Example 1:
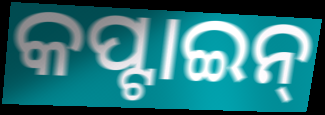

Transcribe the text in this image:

କପ୍ଟାଇନ୍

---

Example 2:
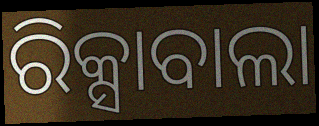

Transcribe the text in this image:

ରିକ୍ସାବାଲା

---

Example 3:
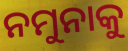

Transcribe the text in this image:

ନମୁନାକୁ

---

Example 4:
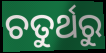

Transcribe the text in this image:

ଚତୁର୍ଥରୁ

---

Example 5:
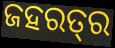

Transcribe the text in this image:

ଜହରତ୍‍ର